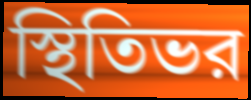
স্থিতিভর